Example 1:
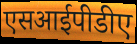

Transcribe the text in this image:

एसआईपीडीए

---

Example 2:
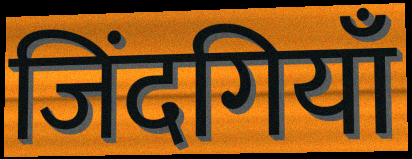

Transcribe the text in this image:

जिंदगियाँ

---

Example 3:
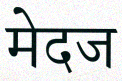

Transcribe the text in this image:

मेदज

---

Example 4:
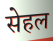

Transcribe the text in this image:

सेहल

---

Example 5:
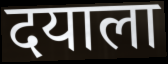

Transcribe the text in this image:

दयाला